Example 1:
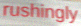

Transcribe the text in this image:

rushingly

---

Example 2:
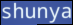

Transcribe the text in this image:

shunya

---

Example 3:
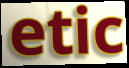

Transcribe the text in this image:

etic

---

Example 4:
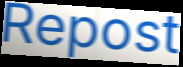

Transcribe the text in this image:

Repost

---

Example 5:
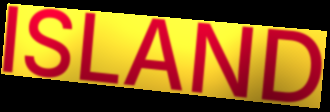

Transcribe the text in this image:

ISLAND